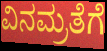
ವಿನಮ್ರತೆಗೆ